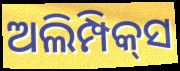
ଅଲିମ୍ପିକ୍‌ସ